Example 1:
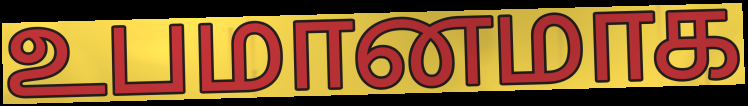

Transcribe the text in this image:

உபமானமாக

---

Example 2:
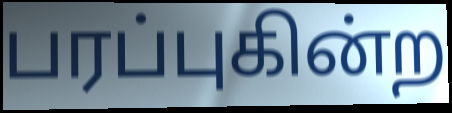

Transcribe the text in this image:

பரப்புகின்ற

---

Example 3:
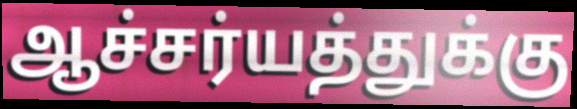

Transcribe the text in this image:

ஆச்சர்யத்துக்கு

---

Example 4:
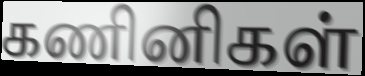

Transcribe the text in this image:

கணினிகள்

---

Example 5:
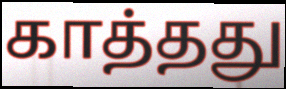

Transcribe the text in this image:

காத்தது